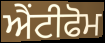
ਐਂਟੀਫੋਮ